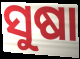
ସୁଷା